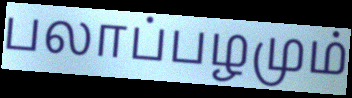
பலாப்பழமும்